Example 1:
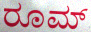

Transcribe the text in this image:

ರೂಮ್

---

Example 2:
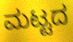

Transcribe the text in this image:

ಮಟ್ಟದ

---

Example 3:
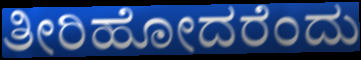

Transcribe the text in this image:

ತೀರಿಹೋದರೆಂದು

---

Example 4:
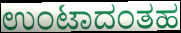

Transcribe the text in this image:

ಉಂಟಾದಂತಹ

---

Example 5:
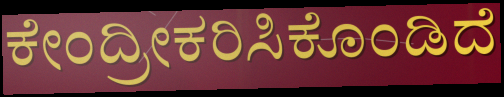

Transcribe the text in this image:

ಕೇಂದ್ರೀಕರಿಸಿಕೊಂಡಿದೆ